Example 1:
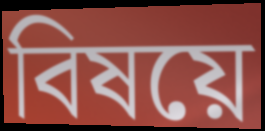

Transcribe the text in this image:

বিষয়ে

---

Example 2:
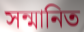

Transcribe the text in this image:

সন্মানিত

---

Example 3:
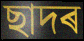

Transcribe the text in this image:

ছাদৰ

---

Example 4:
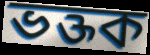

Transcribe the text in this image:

ভক্তক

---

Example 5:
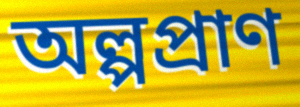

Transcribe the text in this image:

অল্পপ্ৰাণ